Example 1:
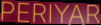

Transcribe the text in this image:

PERIYAR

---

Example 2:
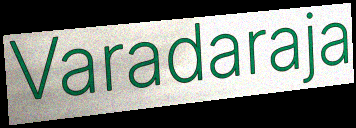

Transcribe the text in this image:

Varadaraja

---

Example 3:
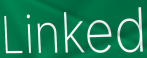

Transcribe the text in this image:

Linked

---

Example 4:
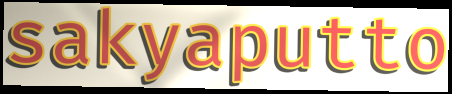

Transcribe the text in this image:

sakyaputto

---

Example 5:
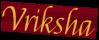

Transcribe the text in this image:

Vriksha